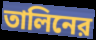
তালিনের